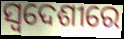
ସ୍ୱଦେଶୀରେ